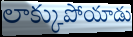
లాక్కుపోయాడు